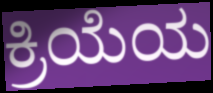
ಕ್ರಿಯೆಯ